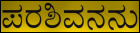
ಪರಶಿವನನು